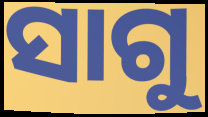
ସାଗୁ